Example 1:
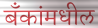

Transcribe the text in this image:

बँकांमधील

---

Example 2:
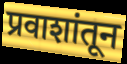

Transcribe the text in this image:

प्रवाशांतून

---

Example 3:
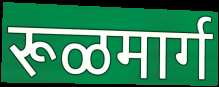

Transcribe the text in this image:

रूळमार्ग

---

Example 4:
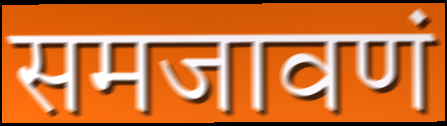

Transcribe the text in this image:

समजावणं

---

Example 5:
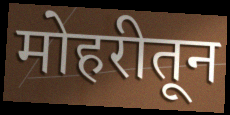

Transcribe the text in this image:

मोहरीतून